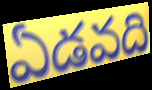
ఏడవది